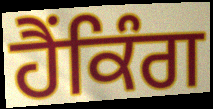
ਹੈਂਕਿੰਗ